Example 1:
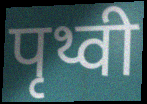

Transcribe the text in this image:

पृथ्‍वी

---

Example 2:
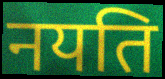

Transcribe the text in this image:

नयति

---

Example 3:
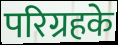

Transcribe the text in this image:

परिग्रहके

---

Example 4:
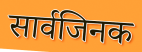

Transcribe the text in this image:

सार्वजिनक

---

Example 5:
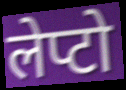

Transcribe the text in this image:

लेप्टो